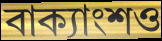
বাক্যাংশও